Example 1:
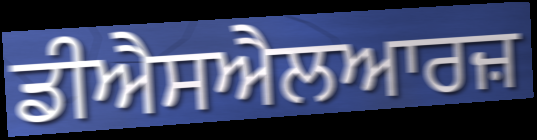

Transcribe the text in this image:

ਡੀਐਸਐਲਆਰਜ਼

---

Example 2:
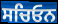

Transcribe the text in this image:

ਸਚਿਓਨ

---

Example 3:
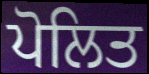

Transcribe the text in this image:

ਪੋਲਿਤ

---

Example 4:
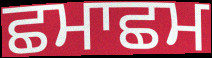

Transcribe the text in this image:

ਛਮਾਛਮ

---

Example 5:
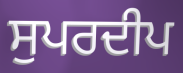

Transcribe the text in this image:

ਸੁਪਰਦੀਪ